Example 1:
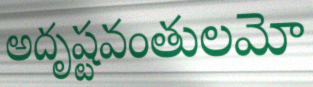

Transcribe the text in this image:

అదృష్టవంతులమో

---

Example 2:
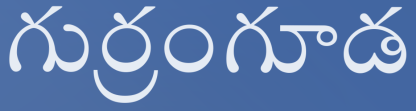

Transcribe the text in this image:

గుర్రంగూడ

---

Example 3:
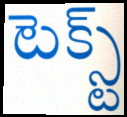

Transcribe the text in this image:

టెక్స్ట్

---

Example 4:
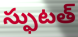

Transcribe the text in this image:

స్ఫుటత్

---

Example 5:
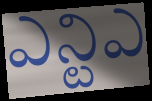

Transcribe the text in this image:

ఎన్టిఎ